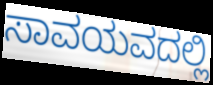
ಸಾವಯವದಲ್ಲಿ